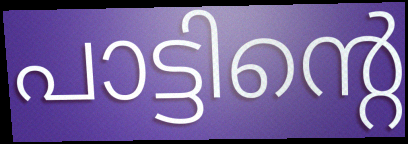
പാട്ടിന്റെ